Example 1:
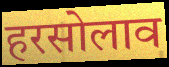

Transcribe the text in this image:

हरसोलाव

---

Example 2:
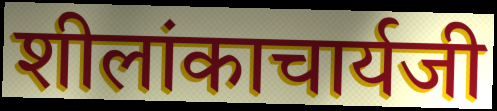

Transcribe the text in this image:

शीलांकाचार्यजी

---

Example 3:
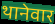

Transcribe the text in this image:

थानेवार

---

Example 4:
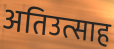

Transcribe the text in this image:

अतिउत्साह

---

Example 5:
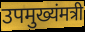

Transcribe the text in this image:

उपमुख्यंमत्री